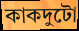
কাকদুটো